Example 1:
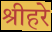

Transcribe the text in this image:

श्रीहरे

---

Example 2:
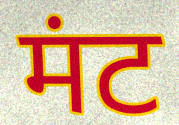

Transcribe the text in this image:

मंट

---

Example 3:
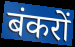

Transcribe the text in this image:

बंकरों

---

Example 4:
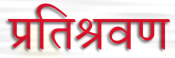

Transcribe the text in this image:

प्रतिश्रवण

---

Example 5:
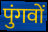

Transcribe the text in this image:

पुंगवों